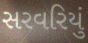
સરવરિયું